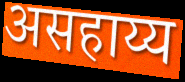
असहाय्य